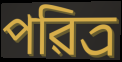
পৱিত্ৰ